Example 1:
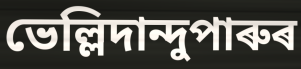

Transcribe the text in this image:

ভেল্লিদান্দুপাৰুৰ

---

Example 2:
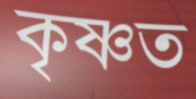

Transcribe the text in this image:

কৃষ্ণত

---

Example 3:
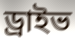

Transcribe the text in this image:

ড্ৰাইভ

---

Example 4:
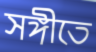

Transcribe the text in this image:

সঙ্গীতে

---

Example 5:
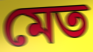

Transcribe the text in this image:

মেত